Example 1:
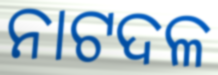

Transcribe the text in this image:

ନାଟଦଳ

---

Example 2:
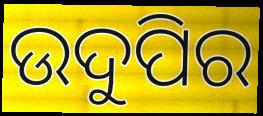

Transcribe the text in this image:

ଉଦୁପିର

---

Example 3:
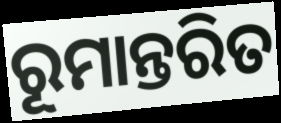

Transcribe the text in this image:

ରୂମାନ୍ତରିତ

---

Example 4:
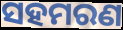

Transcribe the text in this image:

ସହମରଣ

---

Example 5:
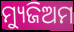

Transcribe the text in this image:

ମ୍ଯୁଜିଅମ